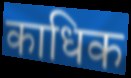
काधिक